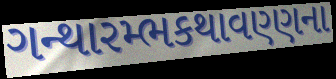
ગન્થારમ્ભકથાવણ્ણના